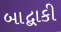
બાદ્બાકી